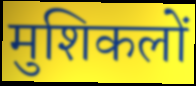
मुशिकलों